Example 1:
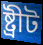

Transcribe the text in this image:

ষ্ট্ৰীট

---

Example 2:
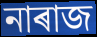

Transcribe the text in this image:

নাৰাজ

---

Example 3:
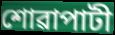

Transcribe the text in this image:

শোৱাপাটী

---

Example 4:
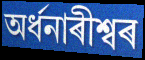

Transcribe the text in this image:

অৰ্ধনাৰীশ্বৰ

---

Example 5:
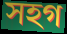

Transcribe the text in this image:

সহগ